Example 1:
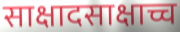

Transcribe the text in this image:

साक्षादसाक्षाच्च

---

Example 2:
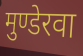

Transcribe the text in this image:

मुण्डेरवा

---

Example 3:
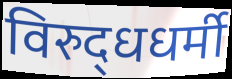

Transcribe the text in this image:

विरुद्धधर्मी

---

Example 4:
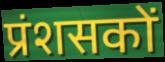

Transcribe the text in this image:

प्रंशसकों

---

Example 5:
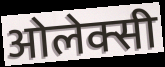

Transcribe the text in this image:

ओलेक्सी